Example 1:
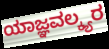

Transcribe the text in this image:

ಯಾಜ್ಞವಲ್ಕ್ಯರ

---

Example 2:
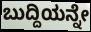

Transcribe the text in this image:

ಬುದ್ದಿಯನ್ನೇ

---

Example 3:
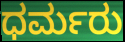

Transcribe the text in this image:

ಧರ್ಮರು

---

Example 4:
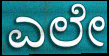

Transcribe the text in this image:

ಎಲೇ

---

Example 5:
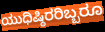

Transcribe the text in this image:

ಯುಧಿಷ್ಠಿರರಿಬ್ಬರೂ